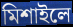
মিশাইলে